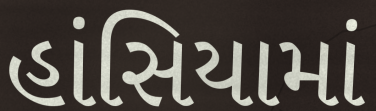
હાંસિયામાં